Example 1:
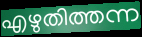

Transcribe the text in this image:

എഴുതിത്തന്ന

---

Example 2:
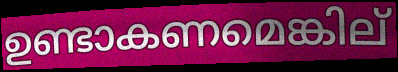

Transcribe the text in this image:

ഉണ്ടാകണമെങ്കില്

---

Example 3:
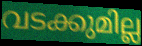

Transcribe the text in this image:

വടക്കുമില്ല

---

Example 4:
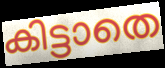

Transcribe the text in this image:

കിട്ടാതെ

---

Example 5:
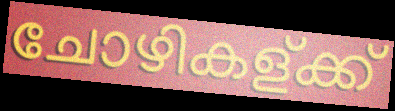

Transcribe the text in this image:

ചോഴികള്ക്ക്